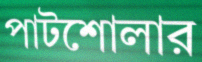
পাটশোলার